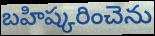
బహిష్కరించెను